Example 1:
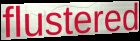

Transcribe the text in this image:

flustered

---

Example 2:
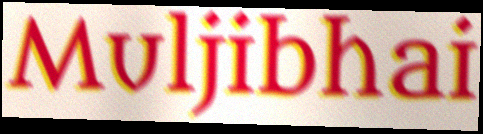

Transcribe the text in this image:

Muljibhai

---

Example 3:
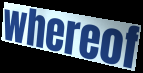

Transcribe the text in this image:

whereof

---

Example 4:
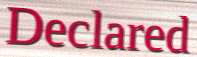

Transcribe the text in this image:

Declared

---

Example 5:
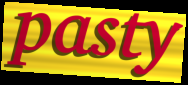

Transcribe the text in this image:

pasty